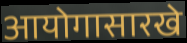
आयोगासारखे